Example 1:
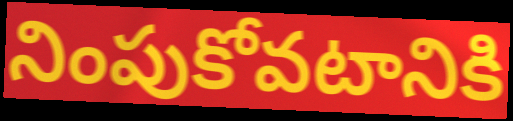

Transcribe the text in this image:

నింపుకోవటానికి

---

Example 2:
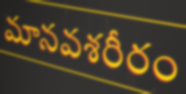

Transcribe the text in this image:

మానవశరీరం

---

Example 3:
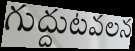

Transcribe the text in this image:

గుద్దుటవలన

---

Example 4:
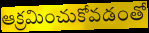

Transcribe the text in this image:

ఆక్రమించుకోవడంతో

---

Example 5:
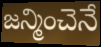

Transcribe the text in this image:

జన్మించెనే